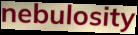
nebulosity